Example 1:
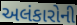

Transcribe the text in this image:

અલંકારોની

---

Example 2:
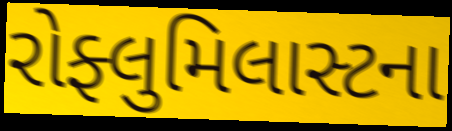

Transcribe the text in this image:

રોફ્લુમિલાસ્ટના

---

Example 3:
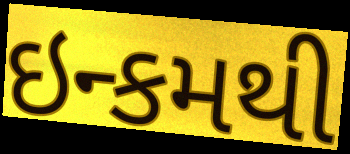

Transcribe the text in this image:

ઇન્કમથી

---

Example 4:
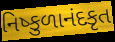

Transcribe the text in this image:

નિષ્કુળાનંદકૃત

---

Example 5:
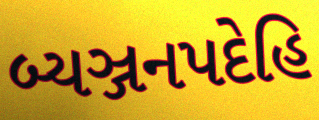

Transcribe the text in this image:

બ્યઞ્જનપદેહિ